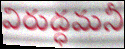
విరుద్ధమనీ